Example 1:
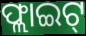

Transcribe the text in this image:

ଫ୍ଲାଇଟ୍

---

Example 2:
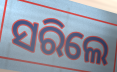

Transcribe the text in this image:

ସରିଲେ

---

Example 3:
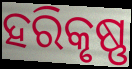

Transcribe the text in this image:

ହରିକୃଷ୍ଣ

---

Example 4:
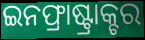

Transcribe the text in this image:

ଇନଫ୍ରାଷ୍ଟ୍ରାକ୍ଚର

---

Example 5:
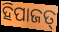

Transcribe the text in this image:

ହିପାଜତ୍